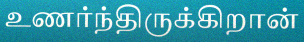
உணர்ந்திருக்கிறான்